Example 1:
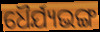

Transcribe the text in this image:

ଧୈର୍ଯ୍ୟଭଙ୍ଗ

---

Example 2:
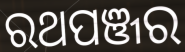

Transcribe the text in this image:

ରଥପଞ୍ଜର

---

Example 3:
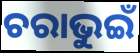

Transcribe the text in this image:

ଚରାଭୁଇଁ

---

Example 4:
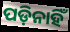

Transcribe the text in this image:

ପଡ଼ିନାହିଁ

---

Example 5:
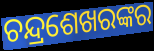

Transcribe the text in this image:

ଚନ୍ଦ୍ରଶେଖରଙ୍କର